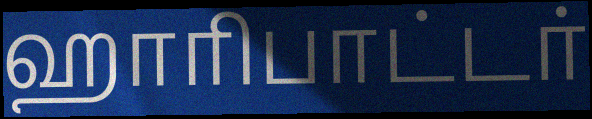
ஹாரிபாட்டர்